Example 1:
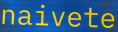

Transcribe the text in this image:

naivete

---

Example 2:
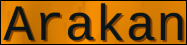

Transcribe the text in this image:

Arakan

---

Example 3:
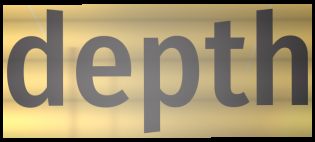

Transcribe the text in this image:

depth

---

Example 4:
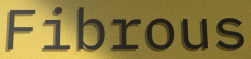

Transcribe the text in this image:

Fibrous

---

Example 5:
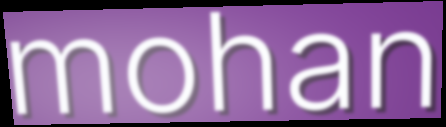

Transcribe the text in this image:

mohan